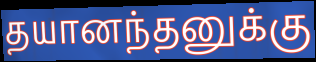
தயானந்தனுக்கு